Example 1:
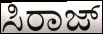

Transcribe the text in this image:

ಸಿರಾಜ್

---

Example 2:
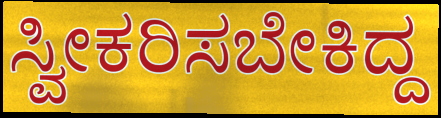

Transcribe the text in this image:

ಸ್ವೀಕರಿಸಬೇಕಿದ್ದ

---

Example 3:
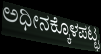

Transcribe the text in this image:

ಅಧೀನಕ್ಕೊಳಪಟ್ಟ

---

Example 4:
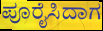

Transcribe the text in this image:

ಪೂರೈಸಿದಾಗ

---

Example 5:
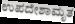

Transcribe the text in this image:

ಉಪದೇಶಾಮೃತ